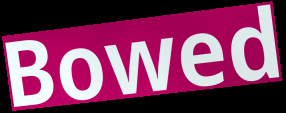
Bowed